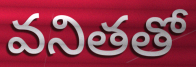
వనితతో